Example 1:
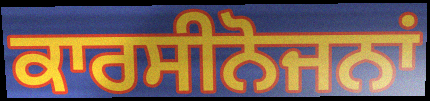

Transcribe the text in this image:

ਕਾਰਸੀਨੋਜਨਾਂ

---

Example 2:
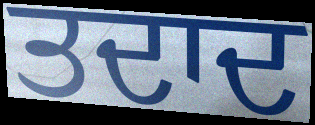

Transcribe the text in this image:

ਤਦਾਦ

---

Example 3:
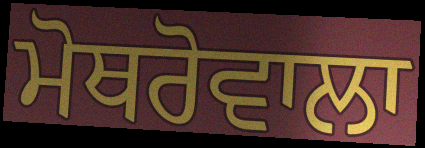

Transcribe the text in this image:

ਮੋਥਰੋਵਾਲਾ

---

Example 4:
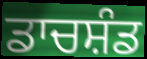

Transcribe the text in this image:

ਡਾਚਸ਼ੰਡ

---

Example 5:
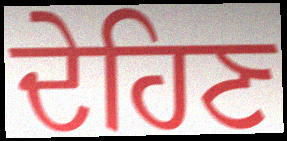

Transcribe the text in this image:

ਦੇਹਿਣ